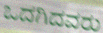
ಒದಗಿದವರು